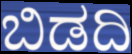
ಬಿಡದಿ